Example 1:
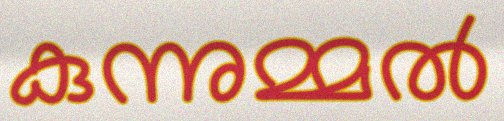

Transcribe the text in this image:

കുന്നുമ്മൽ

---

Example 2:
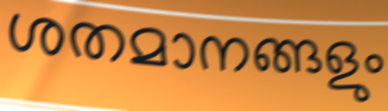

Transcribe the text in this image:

ശതമാനങ്ങളും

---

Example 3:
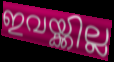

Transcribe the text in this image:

ഇവയ്ക്കില്ല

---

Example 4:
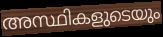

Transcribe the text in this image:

അസ്ഥികളുടെയും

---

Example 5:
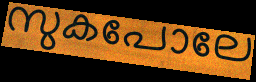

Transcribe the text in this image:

സുകപോലേ